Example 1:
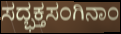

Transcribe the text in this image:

ಸದ್ಭಕ್ತಸಂಗಿನಾಂ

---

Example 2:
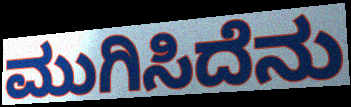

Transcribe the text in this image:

ಮುಗಿಸಿದೆನು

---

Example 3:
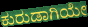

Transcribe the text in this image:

ಕುರುಡಾಗಿಯೇ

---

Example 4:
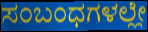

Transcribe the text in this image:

ಸಂಬಂಧಗಳಲ್ಲೇ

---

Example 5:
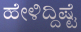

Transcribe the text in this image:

ಹೇಳಿದ್ದಿಷ್ಟೆ